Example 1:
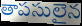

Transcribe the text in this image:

తాపసులైన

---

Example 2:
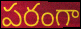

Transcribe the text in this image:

పరంగా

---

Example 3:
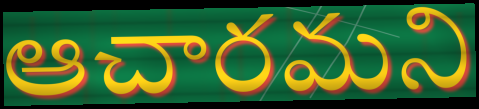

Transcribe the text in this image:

ఆచారమని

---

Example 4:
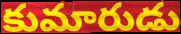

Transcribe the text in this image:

కుమారుడు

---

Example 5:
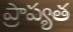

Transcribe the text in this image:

ప్రాప్యత